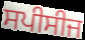
ਸਪੀਸੀਜ